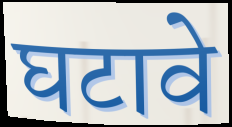
घटावे